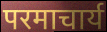
परमाचार्य